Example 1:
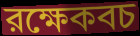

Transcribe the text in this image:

রক্ষেকবচ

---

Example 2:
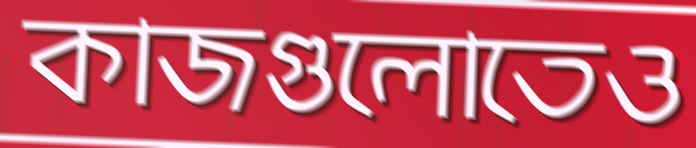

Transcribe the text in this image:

কাজগুলোতেও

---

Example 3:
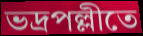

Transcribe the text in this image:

ভদ্রপল্লীতে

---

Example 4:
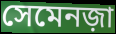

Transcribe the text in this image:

সেমেনজ়া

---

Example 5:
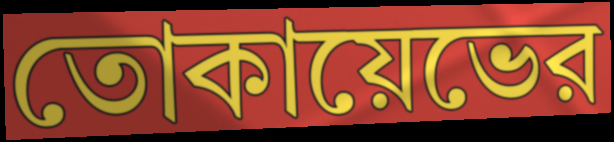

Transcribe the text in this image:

তোকায়েভের